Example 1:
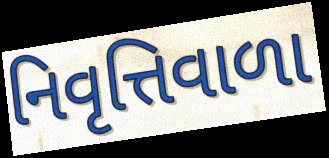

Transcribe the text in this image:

નિવૃત્તિવાળા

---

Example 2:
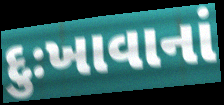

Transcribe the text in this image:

દુઃખાવાનાં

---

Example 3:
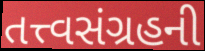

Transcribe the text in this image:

તત્ત્વસંગ્રહની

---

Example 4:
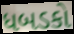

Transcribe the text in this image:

ધબડકો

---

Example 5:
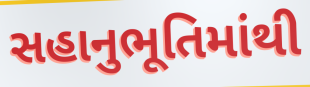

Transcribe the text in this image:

સહાનુભૂતિમાંથી